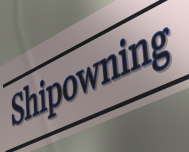
Shipowning